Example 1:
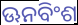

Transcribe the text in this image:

ଊନବିଂଶ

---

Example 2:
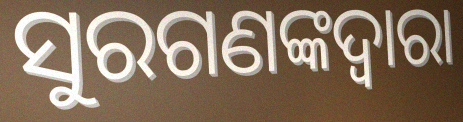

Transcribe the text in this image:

ସୁରଗଣଙ୍କଦ୍ୱାରା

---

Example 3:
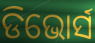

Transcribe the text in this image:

ଡିଭୋର୍ସ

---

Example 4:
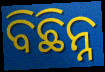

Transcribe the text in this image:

ବିଛିନ୍ନ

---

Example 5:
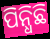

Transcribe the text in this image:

ପିନ୍ଧିଛି